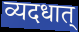
व्यदधात्